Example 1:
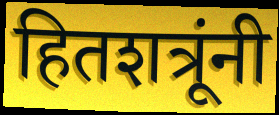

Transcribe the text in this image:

हितशत्रूंनी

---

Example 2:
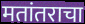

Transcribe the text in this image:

मतांतराचा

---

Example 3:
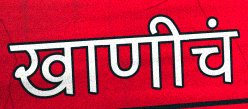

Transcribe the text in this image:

खाणीचं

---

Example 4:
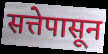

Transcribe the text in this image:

सत्तेपासून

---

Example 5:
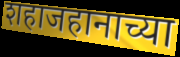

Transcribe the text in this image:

शहाजहानाच्या